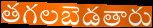
తగలబెడతారు